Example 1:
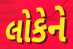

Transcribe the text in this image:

લોકેને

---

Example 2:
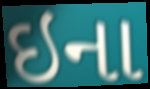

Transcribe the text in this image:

ઇના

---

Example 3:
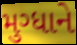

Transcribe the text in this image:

મુગ્ધાને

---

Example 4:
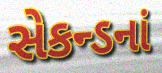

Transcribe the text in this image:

સેકન્ડનાં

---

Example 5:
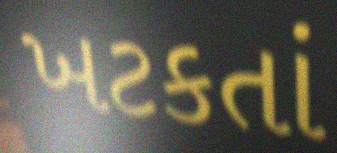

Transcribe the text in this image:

ખટકતાં